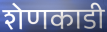
शेणकाडी